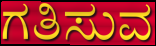
ಗತಿಸುವ